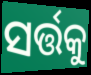
ସର୍ତ୍ତକୁ